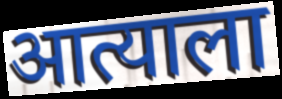
आत्याला